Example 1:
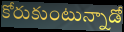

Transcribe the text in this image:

కోరుకుంటున్నాడో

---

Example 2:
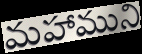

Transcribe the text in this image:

మహాముని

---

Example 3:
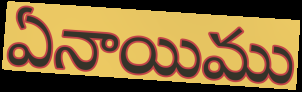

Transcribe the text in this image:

ఏనాయిము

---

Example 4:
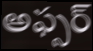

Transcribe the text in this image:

అఫ్సర్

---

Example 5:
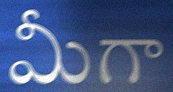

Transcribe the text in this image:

మీగా